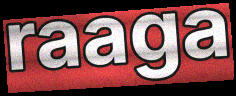
raaga